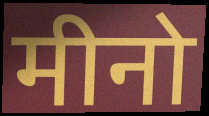
मीनो